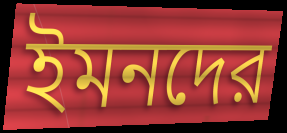
ইমনদের